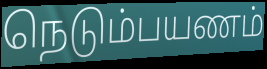
நெடும்பயணம்